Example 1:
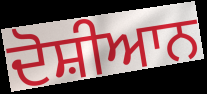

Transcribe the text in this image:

ਦੋਸ਼ੀਆਨ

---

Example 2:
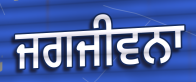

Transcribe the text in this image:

ਜਗਜੀਵਨਾ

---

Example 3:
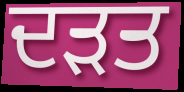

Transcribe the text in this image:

ਦੜਤ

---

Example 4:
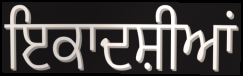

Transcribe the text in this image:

ਇਕਾਦਸ਼ੀਆਂ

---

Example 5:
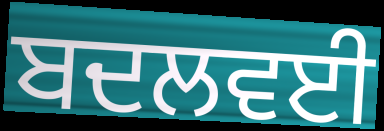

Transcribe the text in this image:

ਬਦਲਵਈ